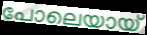
പോലെയായ്